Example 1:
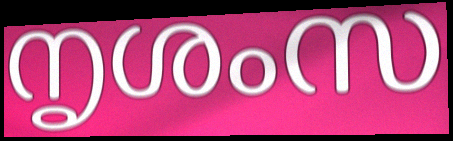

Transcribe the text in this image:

നൃശംസ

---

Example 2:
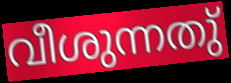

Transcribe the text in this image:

വീശുന്നതു്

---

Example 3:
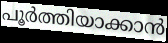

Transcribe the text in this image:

പൂർത്തിയാക്കാൻ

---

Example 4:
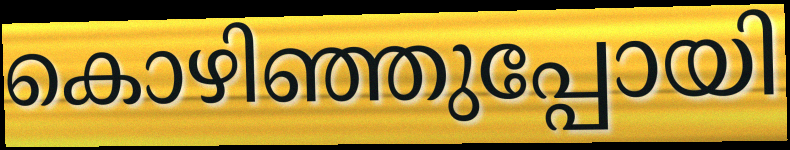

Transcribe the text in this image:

കൊഴിഞ്ഞുപ്പോയി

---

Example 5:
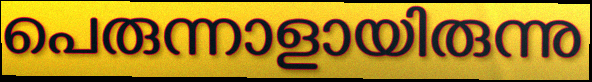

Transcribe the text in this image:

പെരുന്നാളായിരുന്നു